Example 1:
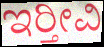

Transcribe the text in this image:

ಇರ‍್ತೀವಿ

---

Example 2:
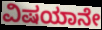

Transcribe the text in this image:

ವಿಷಯಾನೇ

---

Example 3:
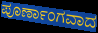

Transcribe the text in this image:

ಪೂರ್ಣಾಂಗವಾದ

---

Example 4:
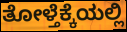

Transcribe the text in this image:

ತೋಳ್ತೆಕ್ಕೆಯಲ್ಲಿ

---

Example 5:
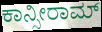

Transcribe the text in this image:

ಕಾನ್ಸೀರಾಮ್